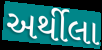
અર્થીલા